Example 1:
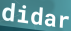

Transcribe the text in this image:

didar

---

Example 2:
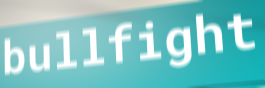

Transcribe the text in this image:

bullfight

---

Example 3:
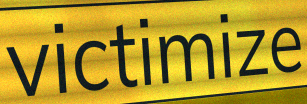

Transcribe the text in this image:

victimize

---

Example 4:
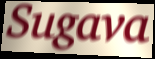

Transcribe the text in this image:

Sugava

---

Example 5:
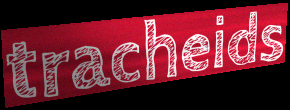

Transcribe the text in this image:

tracheids